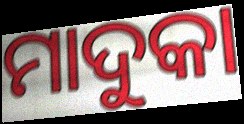
ମାଦୁକା